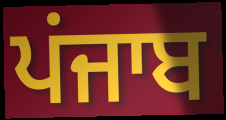
ਪਂਜਾਬ